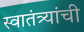
स्वातंत्र्यांची